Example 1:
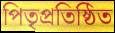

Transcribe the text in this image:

পিতৃপ্রতিষ্ঠিত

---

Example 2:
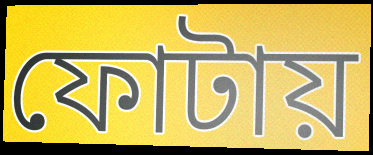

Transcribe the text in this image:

ফোটায়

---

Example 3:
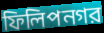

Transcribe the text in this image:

ফিলিপনগর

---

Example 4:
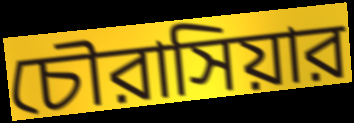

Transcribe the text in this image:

চৌরাসিয়ার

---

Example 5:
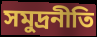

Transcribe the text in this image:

সমুদ্রনীতি